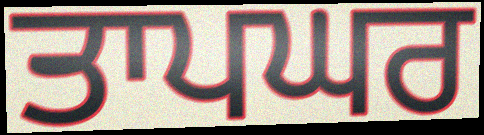
ਤਾਪਘਰ